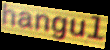
hangul